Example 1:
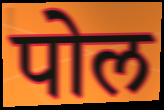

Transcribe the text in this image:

पोल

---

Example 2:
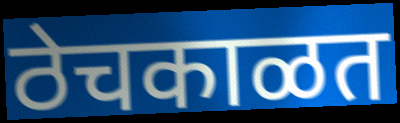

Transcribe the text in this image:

ठेचकाळत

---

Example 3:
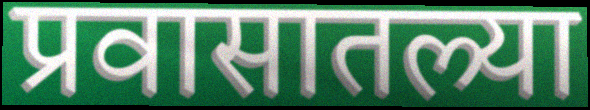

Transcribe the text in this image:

प्रवासातल्या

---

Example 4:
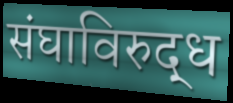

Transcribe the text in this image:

संघाविरुद्ध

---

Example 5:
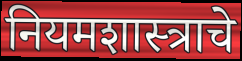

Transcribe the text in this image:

नियमशास्त्राचे